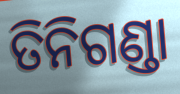
ତିନିଗଣ୍ଡା